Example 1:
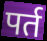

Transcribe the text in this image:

पर्त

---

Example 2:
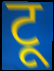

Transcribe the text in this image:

टू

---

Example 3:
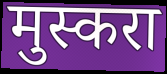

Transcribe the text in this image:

मुस्करा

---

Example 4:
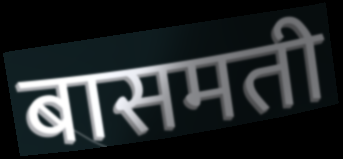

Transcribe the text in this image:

बासमती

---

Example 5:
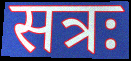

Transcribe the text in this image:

सत्रः